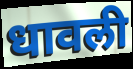
धावली